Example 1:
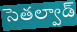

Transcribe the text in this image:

సెతల్వాడ్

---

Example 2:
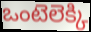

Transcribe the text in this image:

ఒంటెలెక్కి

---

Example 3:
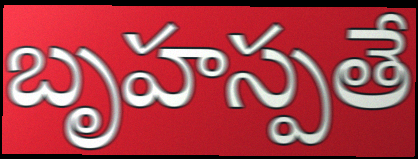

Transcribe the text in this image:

బృహస్పతే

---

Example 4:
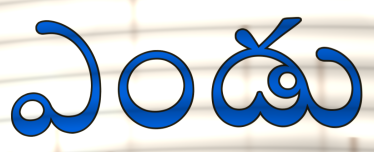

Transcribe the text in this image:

ఎండు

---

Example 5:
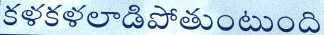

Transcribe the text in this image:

కళకళలాడిపోతుంటుంది